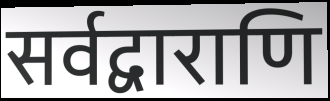
सर्वद्वाराणि